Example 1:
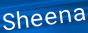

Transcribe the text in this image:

Sheena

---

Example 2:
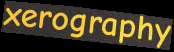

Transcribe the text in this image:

xerography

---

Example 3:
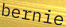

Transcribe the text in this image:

bernie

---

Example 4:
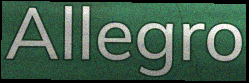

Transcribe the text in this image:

Allegro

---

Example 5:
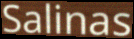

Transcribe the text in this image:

Salinas